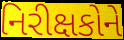
નિરીક્ષકોને